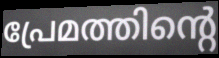
പ്രേമത്തിന്റെ